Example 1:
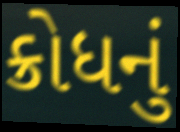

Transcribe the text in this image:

ક્રોધનું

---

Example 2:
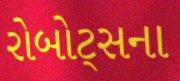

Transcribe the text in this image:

રોબોટ્સના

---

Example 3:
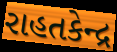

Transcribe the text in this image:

રાહતકેન્દ્ર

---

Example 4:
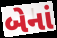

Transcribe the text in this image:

બેનાં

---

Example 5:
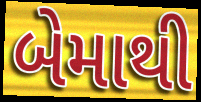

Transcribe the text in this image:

બેમાથી